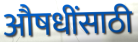
औषधींसाठी